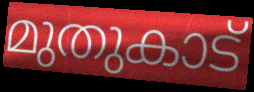
മുതുകാട്